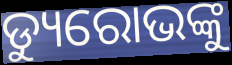
ଡ୍ୟୁରୋଭଙ୍କୁ